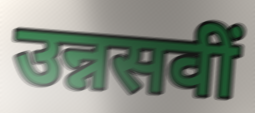
उन्नसवीं